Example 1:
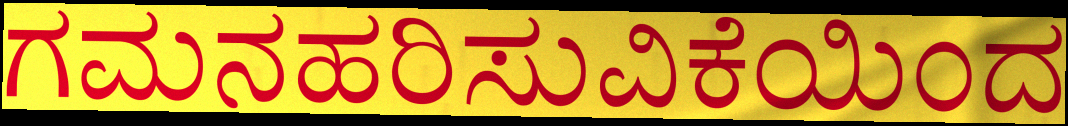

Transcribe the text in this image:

ಗಮನಹರಿಸುವಿಕೆಯಿಂದ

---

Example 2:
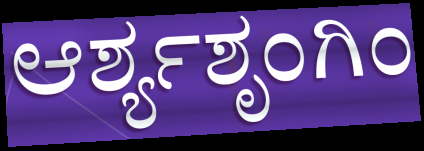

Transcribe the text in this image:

ಆರ್ಶ್ಯಶೃಂಗಿಂ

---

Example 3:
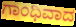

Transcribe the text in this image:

ಗಾಂಧಿವಾದ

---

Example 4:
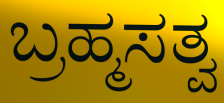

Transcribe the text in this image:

ಬ್ರಹ್ಮಸತ್ವ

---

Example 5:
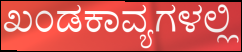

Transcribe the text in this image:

ಖಂಡಕಾವ್ಯಗಳಲ್ಲಿ